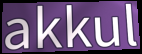
akkul